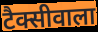
टैक्सीवाला